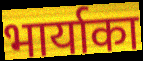
भार्याका